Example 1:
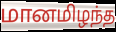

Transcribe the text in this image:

மானமிழந்த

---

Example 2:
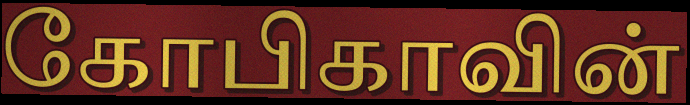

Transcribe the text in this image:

கோபிகாவின்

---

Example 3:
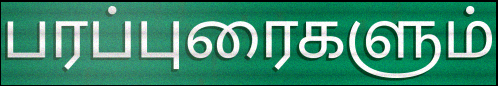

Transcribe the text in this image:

பரப்புரைகளும்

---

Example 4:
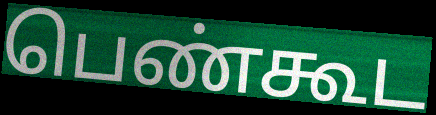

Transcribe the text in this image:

பெண்கூட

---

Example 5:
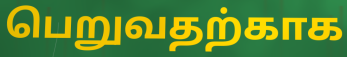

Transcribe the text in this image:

பெறுவதற்காக